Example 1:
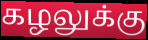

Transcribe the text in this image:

கழலுக்கு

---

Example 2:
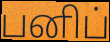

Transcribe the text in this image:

பனிப்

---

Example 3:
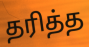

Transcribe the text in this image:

தரித்த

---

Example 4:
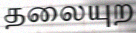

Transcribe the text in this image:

தலையுற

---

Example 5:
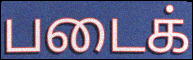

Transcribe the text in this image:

படைக்